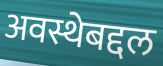
अवस्थेबद्दल